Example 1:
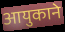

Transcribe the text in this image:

आयुकाने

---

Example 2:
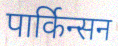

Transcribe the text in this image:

पार्किन्सन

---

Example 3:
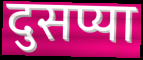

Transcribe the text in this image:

दुसप्या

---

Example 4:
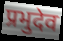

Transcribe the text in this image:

प्रभुदेव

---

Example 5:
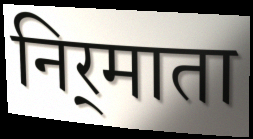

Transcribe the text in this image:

निर्माता